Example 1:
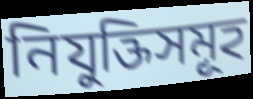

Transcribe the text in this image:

নিযুক্তিসমূহ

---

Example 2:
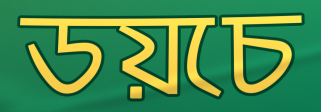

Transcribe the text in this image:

ডয়চে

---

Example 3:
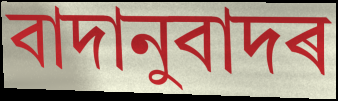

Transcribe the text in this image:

বাদানুবাদৰ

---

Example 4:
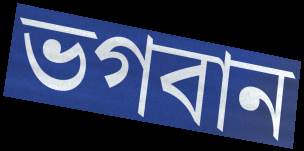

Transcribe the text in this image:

ভগবান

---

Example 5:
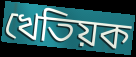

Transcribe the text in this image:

খেতিয়ক